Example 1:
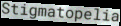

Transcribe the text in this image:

Stigmatopelia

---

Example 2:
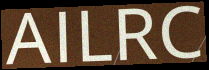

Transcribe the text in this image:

AILRC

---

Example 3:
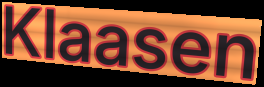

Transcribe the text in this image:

Klaasen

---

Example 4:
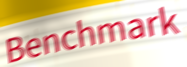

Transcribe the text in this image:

Benchmark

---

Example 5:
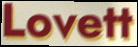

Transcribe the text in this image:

Lovett